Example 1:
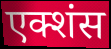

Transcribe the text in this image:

एक्शंस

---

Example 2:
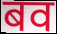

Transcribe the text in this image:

बव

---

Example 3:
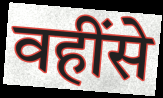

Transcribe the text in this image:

वहींसे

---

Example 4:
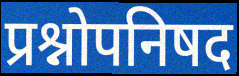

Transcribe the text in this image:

प्रश्नोपनिषद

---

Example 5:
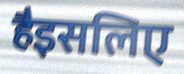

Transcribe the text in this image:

हैइसलिए